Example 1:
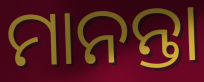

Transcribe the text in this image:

ମାନନ୍ତା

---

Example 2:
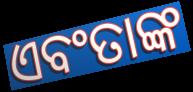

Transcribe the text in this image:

ଏବଂତାଙ୍କ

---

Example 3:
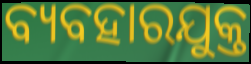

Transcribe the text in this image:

ବ୍ୟବହାରଯୁକ୍ତ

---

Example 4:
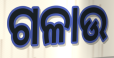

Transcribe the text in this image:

ଗଳାଉ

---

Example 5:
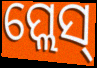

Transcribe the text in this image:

ପ୍ଲେସ୍